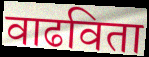
वाढविता